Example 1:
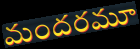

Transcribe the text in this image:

మందరమూ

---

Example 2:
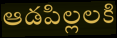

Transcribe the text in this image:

ఆడపిల్లలకి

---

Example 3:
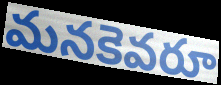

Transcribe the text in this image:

మనకెవరూ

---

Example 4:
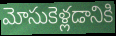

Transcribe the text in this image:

మోసుకెళ్లడానికి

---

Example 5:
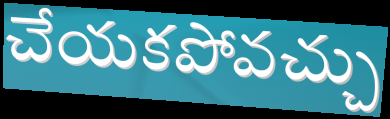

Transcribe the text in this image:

చేయకపోవచ్చు